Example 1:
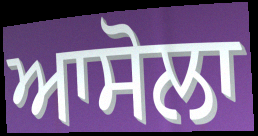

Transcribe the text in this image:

ਆਸੋਲਾ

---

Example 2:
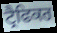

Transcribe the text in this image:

ਟ੍ਰੈਫਿਕਰ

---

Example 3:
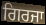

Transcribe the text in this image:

ਗਿਰਜਾ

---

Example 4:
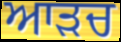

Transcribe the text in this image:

ਆੜਚ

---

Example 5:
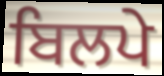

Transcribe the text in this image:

ਬਿਲਪੇ